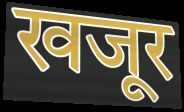
खजूर